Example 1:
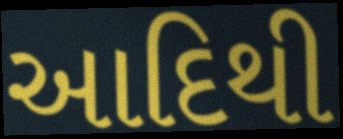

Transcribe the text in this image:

આદિથી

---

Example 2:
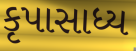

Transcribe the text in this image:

કૃપાસાધ્ય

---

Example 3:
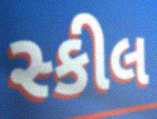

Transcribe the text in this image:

સ્કીલ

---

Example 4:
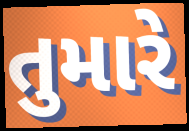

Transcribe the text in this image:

તુમારે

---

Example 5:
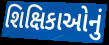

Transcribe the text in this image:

શિક્ષિકાઓનું